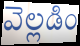
వెల్లడిం